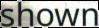
shown